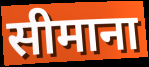
सीमाना